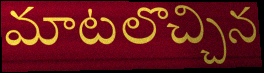
మాటలొచ్చిన